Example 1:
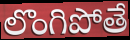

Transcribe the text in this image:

లొంగిపోతే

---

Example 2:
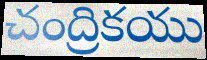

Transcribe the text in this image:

చంద్రికయు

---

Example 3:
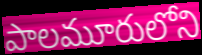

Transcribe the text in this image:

పాలమూరులోని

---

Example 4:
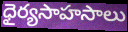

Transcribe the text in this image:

ధైర్యసాహసాలు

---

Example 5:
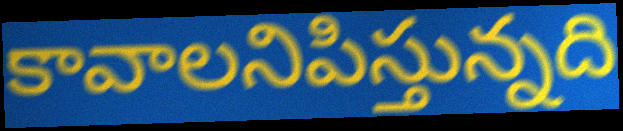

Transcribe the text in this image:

కావాలనిపిస్తున్నది